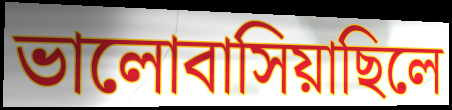
ভালোবাসিয়াছিলে